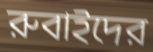
রুবাইদের